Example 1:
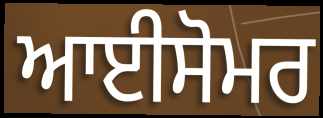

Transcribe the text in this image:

ਆਈਸੋਮਰ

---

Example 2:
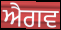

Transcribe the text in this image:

ਐਗਵ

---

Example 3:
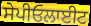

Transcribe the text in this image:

ਸੇਪੀਓਲਾਈਟ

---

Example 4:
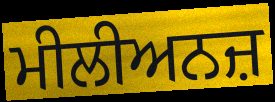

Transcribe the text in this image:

ਮੀਲੀਅਨਜ਼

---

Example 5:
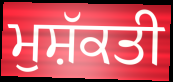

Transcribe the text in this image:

ਮੁਸ਼ੱਕਤੀ